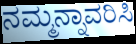
ನಮ್ಮನ್ನಾವರಿಸಿ